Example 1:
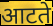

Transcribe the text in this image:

आटते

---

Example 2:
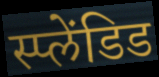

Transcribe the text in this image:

स्प्लेंडिड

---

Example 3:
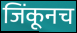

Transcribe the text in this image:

जिंकूनच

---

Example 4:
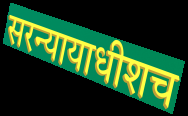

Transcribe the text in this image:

सरन्यायाधीशच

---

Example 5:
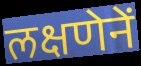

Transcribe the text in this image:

लक्षणेनें